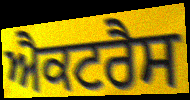
ਐਕਟਰੈਸ